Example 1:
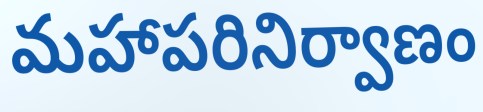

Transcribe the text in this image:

మహాపరినిర్వాణం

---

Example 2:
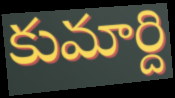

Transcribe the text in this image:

కుమార్ది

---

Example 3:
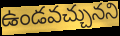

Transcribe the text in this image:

ఉండవచ్చునని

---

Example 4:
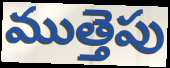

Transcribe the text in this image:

ముత్తెపు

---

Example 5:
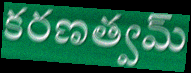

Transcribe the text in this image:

కరణత్వమ్